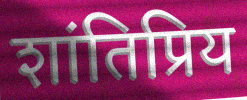
शांतिप्रिय